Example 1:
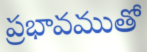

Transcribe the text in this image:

ప్రభావముతో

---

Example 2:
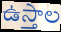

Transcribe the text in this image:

ఉస్తాల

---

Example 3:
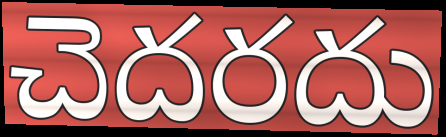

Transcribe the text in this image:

చెదరదు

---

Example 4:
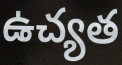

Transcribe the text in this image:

ఉచ్యత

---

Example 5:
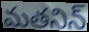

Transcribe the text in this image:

మతనిన్